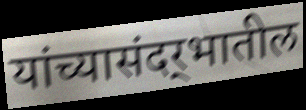
यांच्यासंदर्भातील